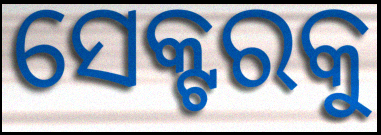
ସେକ୍ଟରକୁ